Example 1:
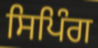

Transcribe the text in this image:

ਸਿਪਿੰਗ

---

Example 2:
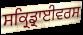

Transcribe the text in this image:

ਸਕ੍ਰਿਡ੍ਰਾਈਵਰਸ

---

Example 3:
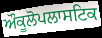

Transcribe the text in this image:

ਔਕੂਲੋਪਲਾਸਟਿਕ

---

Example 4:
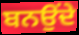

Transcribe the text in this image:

ਬਨਉਂਦੇ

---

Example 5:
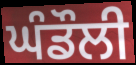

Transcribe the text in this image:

ਘੰਡੌਲੀ